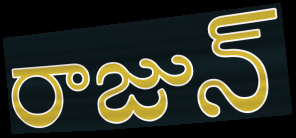
రాజున్